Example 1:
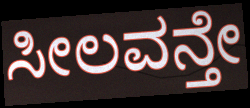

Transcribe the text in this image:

ಸೀಲವನ್ತೇ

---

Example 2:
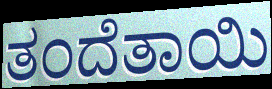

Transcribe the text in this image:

ತಂದೆತಾಯಿ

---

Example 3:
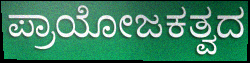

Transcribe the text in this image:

ಪ್ರಾಯೋಜಕತ್ವದ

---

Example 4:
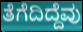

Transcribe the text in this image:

ತೆಗೆದಿದ್ದೆವು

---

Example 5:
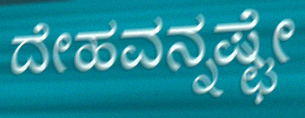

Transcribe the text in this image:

ದೇಹವನ್ನಷ್ಟೇ